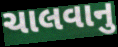
ચાલવાનુ